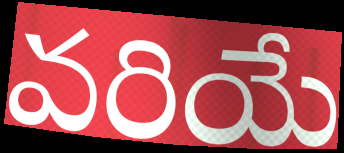
వరియే